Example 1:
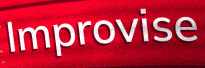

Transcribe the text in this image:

Improvise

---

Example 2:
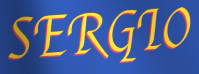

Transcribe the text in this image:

SERGIO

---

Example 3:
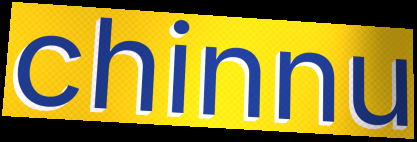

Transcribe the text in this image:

chinnu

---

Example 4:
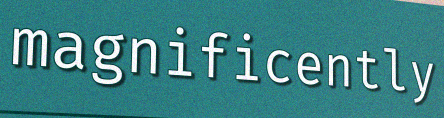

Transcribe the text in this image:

magnificently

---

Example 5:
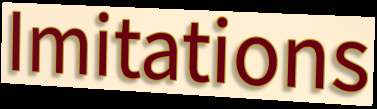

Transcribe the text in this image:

Imitations